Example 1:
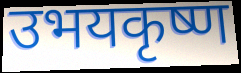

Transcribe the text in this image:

उभयकृष्ण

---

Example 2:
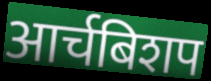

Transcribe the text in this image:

आर्चबिशप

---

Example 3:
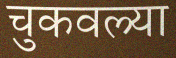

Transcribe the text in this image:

चुकवल्या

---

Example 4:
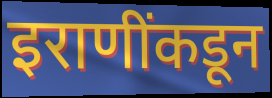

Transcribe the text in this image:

इराणींकडून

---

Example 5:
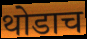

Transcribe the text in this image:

थोडाच